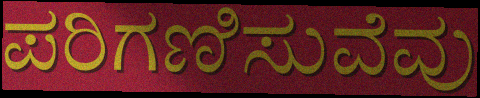
ಪರಿಗಣಿಸುವೆವು